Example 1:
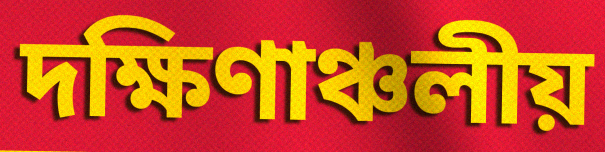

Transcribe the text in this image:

দক্ষিণাঞ্চলীয়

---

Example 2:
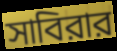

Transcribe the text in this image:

সাবিরার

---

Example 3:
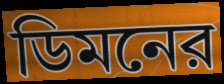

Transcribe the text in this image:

ডিমনের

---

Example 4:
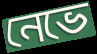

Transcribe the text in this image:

নেভে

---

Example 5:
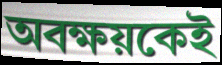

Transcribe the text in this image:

অবক্ষয়কেই